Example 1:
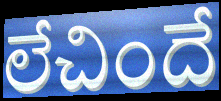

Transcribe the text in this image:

లేచిందే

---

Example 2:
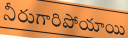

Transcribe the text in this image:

నీరుగారిపోయాయి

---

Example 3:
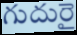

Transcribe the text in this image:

గుదురై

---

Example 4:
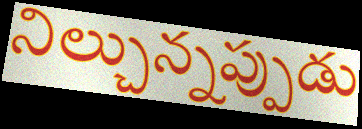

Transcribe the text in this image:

నిల్చున్నప్పుడు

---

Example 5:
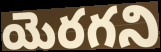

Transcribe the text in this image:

యెరగని